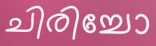
ചിരിച്ചോ